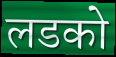
लडको